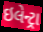
ઇલેન્ટ્રા